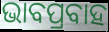
ଭାବପ୍ରବାହ